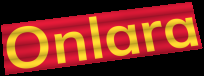
Onlara